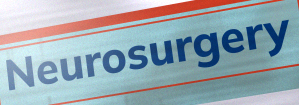
Neurosurgery